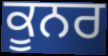
ਕੂਨਰ